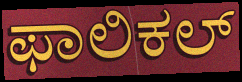
ಫಾಲಿಕಲ್